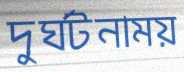
দুর্ঘটনাময়